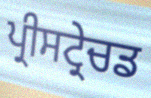
ਪ੍ਰੀਸਟ੍ਰੇਚਡ